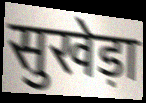
सुखेड़ा